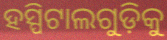
ହସ୍ପିଟାଲଗୁଡ଼ିକୁ